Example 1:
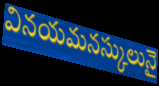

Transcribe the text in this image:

వినయమనస్కులునై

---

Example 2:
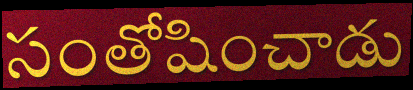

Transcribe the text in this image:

సంతోషించాడు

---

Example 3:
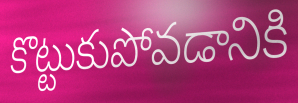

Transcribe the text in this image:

కొట్టుకుపోవడానికి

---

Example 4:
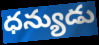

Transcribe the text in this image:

ధన్యుడు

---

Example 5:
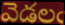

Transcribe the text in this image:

వెడలఁ